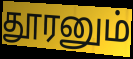
தூரனும்